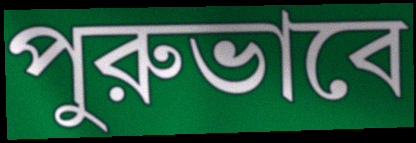
পুরুভাবে